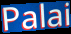
Palai